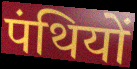
पंथियों